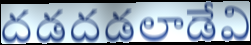
దడదడలాడేవి